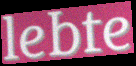
lebte